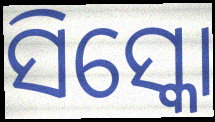
ସିସ୍କୋ